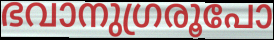
ഭവാനുഗ്രരൂപോ